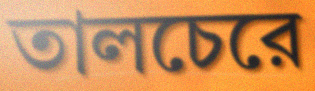
তালচেরে